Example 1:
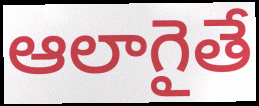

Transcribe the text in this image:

ఆలాగైతే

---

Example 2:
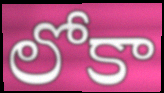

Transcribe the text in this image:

లోకా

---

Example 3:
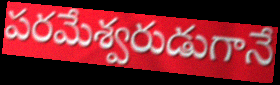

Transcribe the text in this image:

పరమేశ్వరుడుగానే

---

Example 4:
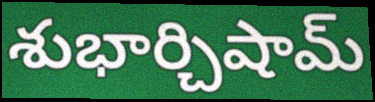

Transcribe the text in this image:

శుభార్చిషామ్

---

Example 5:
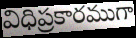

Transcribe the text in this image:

విధిప్రకారముగా